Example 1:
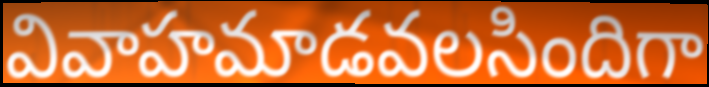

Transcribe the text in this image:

వివాహమాడవలసిందిగా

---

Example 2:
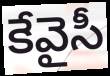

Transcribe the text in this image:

కేవైసీ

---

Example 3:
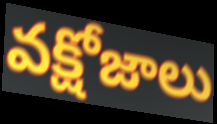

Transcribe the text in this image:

వక్షోజాలు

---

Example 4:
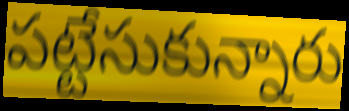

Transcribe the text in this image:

పట్టేసుకున్నారు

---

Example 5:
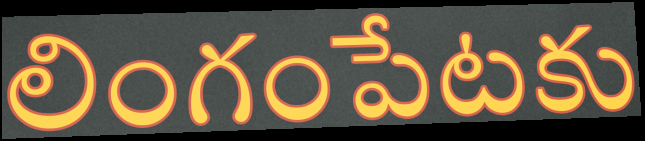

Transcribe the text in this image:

లింగంపేటకు